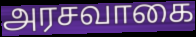
அரசவாகை